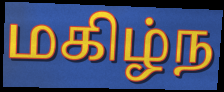
மகிழ்ந